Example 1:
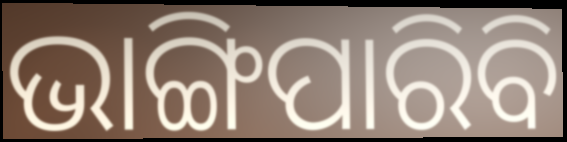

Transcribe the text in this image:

ଭାଙ୍ଗିପାରିବି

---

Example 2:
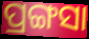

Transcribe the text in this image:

ପ୍ରଙ୍ଗସା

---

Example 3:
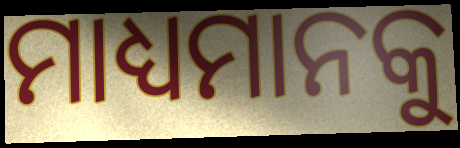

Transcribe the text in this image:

ମାଧ୍ୟମାନକୁ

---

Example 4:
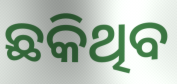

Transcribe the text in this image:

ଛକିଥିବ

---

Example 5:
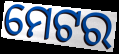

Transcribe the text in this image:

ମେଟର